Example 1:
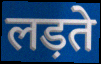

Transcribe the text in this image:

लड़ते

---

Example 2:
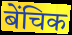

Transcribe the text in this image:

बेंचिक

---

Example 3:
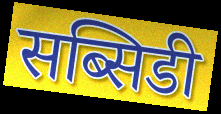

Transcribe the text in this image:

सब्सिडी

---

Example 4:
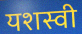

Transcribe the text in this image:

यशस्‍वी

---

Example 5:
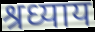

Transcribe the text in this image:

श्रध्याय